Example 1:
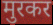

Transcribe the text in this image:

मुरकर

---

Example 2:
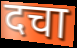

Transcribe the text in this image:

दचा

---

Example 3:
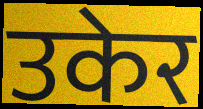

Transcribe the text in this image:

उकेर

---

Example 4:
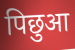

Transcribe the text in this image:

पिछुआ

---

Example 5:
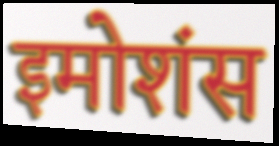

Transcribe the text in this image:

इमोशंस